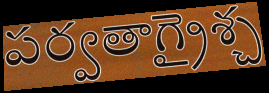
పర్వతాగ్రైశ్చ